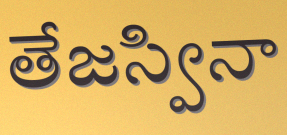
తేజస్వినా